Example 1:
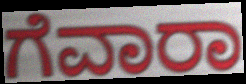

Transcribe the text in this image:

ಗೆವಾರಾ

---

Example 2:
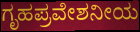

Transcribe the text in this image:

ಗೃಹಪ್ರವೇಶನೀಯ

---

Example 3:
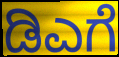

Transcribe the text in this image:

ಡಿಎಗೆ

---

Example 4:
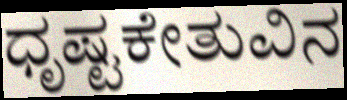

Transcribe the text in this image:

ಧೃಷ್ಟಕೇತುವಿನ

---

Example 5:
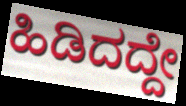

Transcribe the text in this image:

ಹಿಡಿದದ್ದೇ